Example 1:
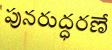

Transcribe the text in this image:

పునరుద్ధరణే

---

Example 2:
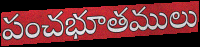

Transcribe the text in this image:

పంచభూతములు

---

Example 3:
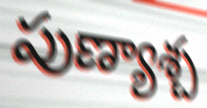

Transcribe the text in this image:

పుణ్యాశ్చ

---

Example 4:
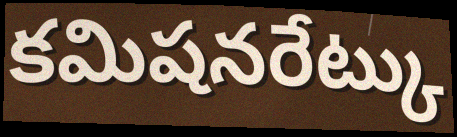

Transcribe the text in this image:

కమిషనరేట్కు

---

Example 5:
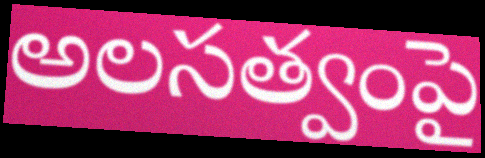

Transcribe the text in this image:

అలసత్వంపై